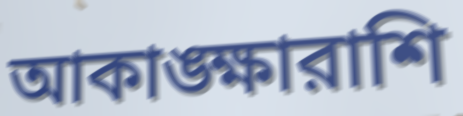
আকাঙ্ক্ষারাশি